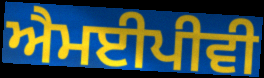
ਐਮਈਪੀਵੀ